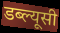
डब्ल्यूसी